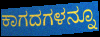
ಕಾಗದಗಳನ್ನೂ